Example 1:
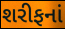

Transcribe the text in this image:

શરીફનાં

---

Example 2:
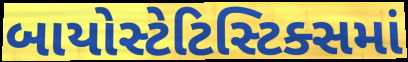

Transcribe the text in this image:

બાયોસ્ટેટિસ્ટિક્સમાં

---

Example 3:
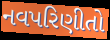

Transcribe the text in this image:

નવપરિણીતો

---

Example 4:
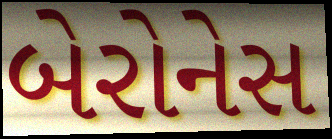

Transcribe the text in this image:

બેરોનેસ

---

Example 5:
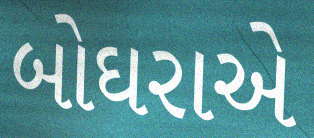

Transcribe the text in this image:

બોઘરાએ